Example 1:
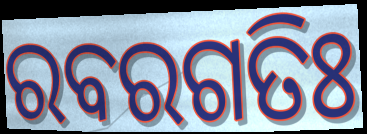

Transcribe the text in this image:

ରବରଗତିଃ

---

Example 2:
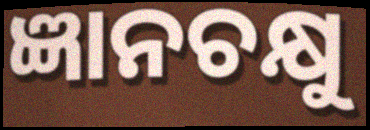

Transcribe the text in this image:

ଜ୍ଞାନଚକ୍ଷୁ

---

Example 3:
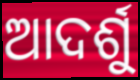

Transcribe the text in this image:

ଆଦର୍ଶୁ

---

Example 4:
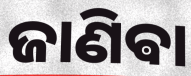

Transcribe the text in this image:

ଜାଣିଵା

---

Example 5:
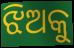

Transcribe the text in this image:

ଝିଅକୁ